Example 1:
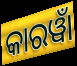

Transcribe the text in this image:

କାରୱାଁ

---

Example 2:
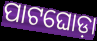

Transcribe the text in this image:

ପାଟଘୋଡ଼ା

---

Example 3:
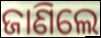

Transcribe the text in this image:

ଜାଣିଲେ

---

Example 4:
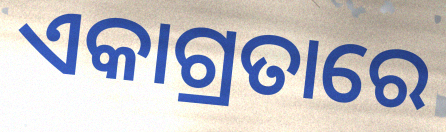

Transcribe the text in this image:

ଏକାଗ୍ରତାରେ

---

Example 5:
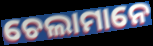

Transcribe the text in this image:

ଚେଲାମାନେ